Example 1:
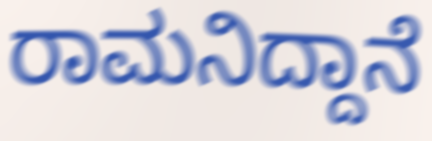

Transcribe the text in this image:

ರಾಮನಿದ್ದಾನೆ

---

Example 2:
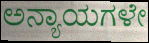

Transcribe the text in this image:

ಅನ್ಯಾಯಗಳೇ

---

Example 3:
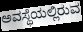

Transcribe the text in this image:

ಅವಸ್ಥೆಯಲ್ಲಿರುವ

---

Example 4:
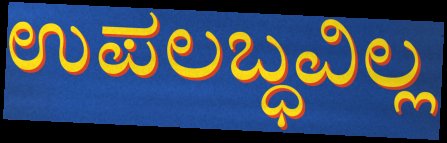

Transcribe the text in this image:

ಉಪಲಬ್ಧವಿಲ್ಲ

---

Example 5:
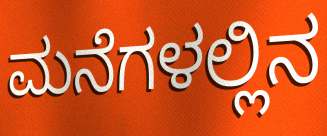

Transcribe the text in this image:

ಮನೆಗಳಲ್ಲಿನ